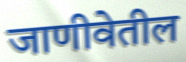
जाणीवेतील